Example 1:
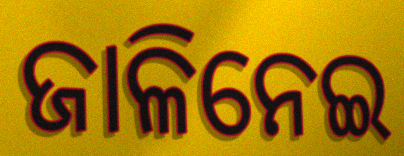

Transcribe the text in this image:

ଜାଳିନେଇ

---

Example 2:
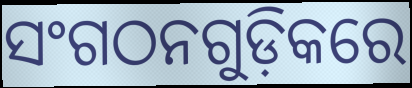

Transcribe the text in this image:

ସଂଗଠନଗୁଡ଼ିକରେ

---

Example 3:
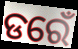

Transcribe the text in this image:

ଡରେଁ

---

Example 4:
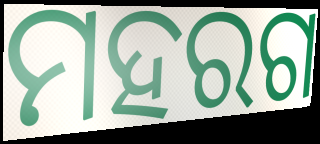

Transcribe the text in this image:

ମହରଗ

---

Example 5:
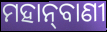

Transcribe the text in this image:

ମହାନ୍‌ବାଣୀ